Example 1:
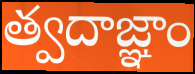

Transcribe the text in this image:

త్వదాజ్ఞాం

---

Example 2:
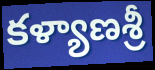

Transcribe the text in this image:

కళ్యాణశ్రీ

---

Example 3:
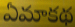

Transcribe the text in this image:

ఏమాకథ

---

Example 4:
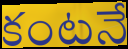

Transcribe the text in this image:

కంటనే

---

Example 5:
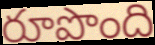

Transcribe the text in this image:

రూపొంది